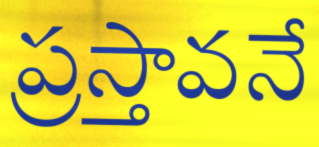
ప్రస్తావనే